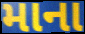
માના